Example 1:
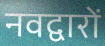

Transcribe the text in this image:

नवद्वारों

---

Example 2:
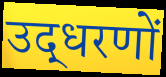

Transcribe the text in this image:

उद्धरणों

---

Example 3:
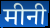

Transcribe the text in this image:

मीनी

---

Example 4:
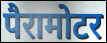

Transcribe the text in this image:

पैरामोटर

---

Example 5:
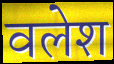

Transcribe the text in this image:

वलेश